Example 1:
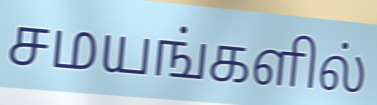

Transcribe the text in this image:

சமயங்களில்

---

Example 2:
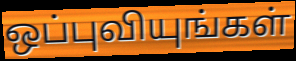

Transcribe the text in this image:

ஒப்புவியுங்கள்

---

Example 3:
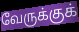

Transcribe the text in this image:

வேருக்குக்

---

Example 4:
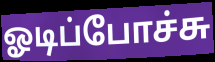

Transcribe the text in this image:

ஓடிப்போச்சு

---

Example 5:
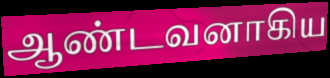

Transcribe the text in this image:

ஆண்டவனாகிய